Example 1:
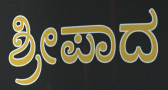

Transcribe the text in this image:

ಶ್ರೀಪಾದ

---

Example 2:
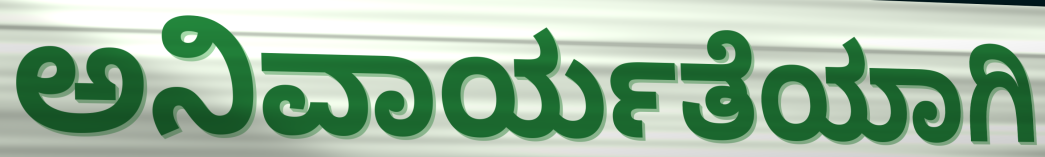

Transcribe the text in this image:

ಅನಿವಾರ್ಯತೆಯಾಗಿ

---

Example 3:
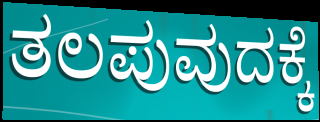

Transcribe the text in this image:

ತಲಪುವುದಕ್ಕೆ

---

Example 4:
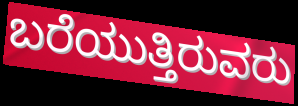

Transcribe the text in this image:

ಬರೆಯುತ್ತಿರುವರು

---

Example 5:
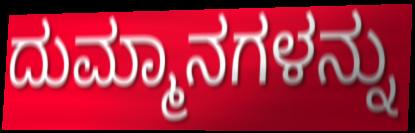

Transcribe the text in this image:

ದುಮ್ಮಾನಗಳನ್ನು